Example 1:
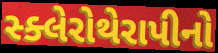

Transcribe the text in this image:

સ્ક્લેરોથેરાપીનો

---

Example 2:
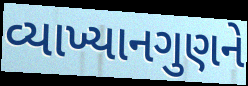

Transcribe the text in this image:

વ્યાખ્યાનગુણને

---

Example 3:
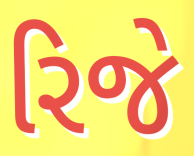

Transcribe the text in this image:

રિજે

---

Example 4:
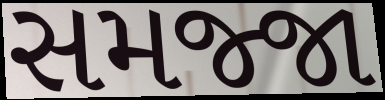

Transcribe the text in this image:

સમજ્જા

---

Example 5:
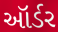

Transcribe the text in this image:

ઑર્ડર